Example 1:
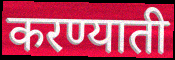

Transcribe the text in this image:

करण्याती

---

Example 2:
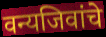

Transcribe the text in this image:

वन्यजिवांचे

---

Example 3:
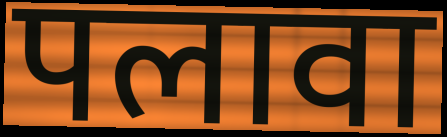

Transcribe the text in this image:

पलावा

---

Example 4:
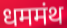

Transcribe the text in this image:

धममंथ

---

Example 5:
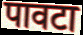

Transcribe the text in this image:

पावटा